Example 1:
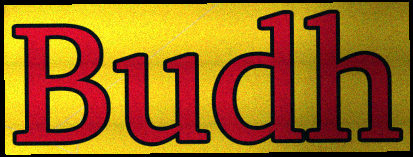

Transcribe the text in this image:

Budh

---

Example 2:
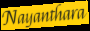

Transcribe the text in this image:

Nayanthara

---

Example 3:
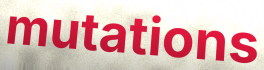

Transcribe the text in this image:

mutations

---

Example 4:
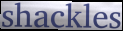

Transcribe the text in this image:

shackles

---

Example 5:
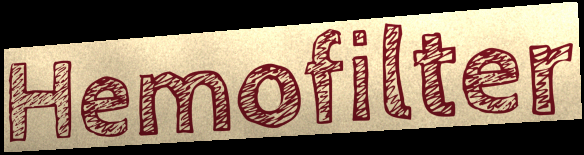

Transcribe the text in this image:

Hemofilter